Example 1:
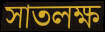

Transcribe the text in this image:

সাতলক্ষ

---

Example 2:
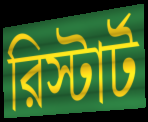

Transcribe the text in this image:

রিস্টার্ট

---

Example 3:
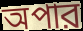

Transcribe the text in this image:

অপার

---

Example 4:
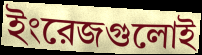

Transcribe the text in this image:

ইংরেজগুলোই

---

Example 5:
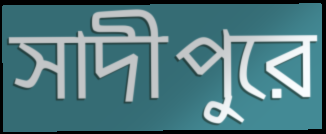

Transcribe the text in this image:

সাদীপুরে